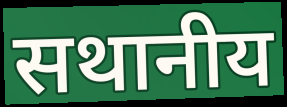
सथानीय